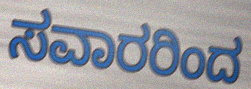
ಸವಾರರಿಂದ